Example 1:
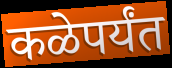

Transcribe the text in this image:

कळेपर्यंत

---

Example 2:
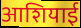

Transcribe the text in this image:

आशियाई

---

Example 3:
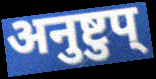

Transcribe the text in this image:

अनुष्टुप्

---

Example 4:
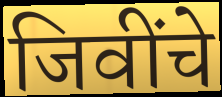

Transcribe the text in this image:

जिवींचे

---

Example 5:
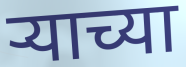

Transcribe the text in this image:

ऱ्याच्या